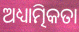
ଅଧ୍ୟାତ୍ମିକତା